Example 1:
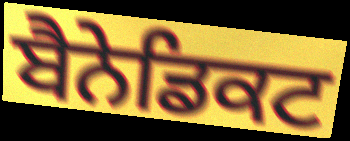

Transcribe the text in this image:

ਬੈਨੇਡਿਕਟ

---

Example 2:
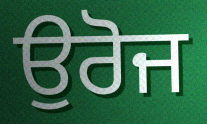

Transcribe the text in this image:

ਉਰੋਜ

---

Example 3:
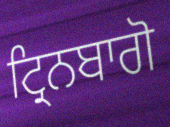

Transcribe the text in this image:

ਟ੍ਰਿਨਬਾਗੋ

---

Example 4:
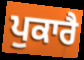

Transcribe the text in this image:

ਪੁਕਾਰੈ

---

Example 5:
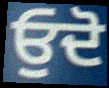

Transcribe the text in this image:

ਓੁਦੋ